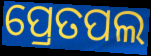
ପ୍ରେତପଲ